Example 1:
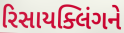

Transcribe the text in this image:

રિસાયક્લિંગને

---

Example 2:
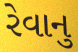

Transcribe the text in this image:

રેવાનુ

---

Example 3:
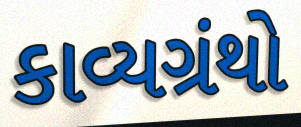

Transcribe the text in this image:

કાવ્યગ્રંથો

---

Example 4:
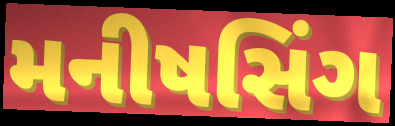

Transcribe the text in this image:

મનીષસિંગ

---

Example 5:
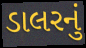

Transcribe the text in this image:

ડાલરનું